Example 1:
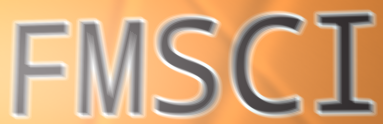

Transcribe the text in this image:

FMSCI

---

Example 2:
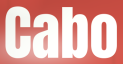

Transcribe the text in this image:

Cabo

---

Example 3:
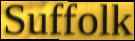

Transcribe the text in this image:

Suffolk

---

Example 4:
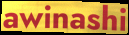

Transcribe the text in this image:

awinashi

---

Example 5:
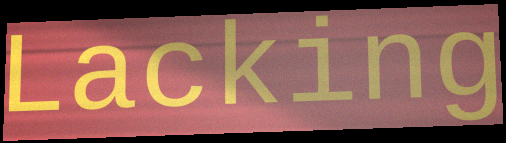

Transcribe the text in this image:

Lacking